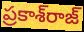
ప్రకాశ్‌రాజ్